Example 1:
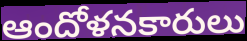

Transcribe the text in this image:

ఆందోళనకారులు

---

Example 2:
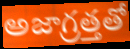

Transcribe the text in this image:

అజాగ్రత్తతో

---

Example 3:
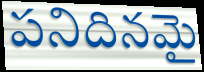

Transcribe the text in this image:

పనిదినమై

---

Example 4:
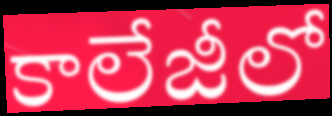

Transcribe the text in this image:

కాలేజీలో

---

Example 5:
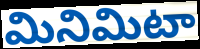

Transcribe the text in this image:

మినిమిటా